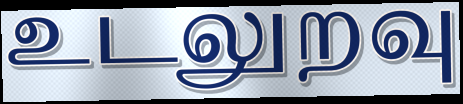
உடலுறவு